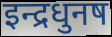
इन्द्रधुनष